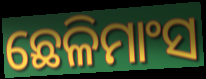
ଛେଳିମାଂସ